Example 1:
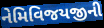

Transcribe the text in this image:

નેમિવિજયજીની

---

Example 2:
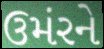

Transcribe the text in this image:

ઉમંરને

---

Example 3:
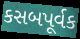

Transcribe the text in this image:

કસબપૂર્વક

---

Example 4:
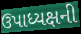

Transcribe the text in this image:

ઉપાધ્યક્ષની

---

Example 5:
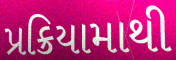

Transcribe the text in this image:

પ્રક્રિયામાથી